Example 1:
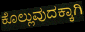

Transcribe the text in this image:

ಕೊಲ್ಲುವುದಕ್ಕಾಗಿ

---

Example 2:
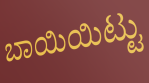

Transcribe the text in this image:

ಬಾಯಿಯಿಟ್ಟು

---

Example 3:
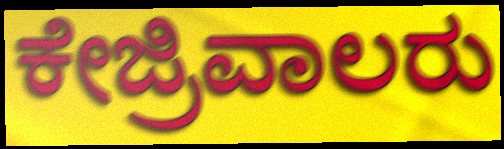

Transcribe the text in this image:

ಕೇಜ್ರಿವಾಲರು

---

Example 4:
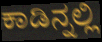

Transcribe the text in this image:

ಕಾಡಿನ್ನಲ್ಲಿ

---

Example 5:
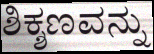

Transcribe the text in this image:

ಶಿಕ್ಶಣವನ್ನು